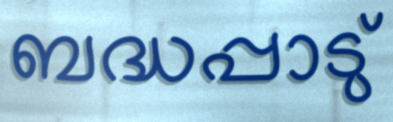
ബദ്ധപ്പാടു്